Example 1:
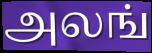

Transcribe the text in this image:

அலங்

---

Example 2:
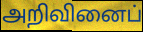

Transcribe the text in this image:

அறிவினைப்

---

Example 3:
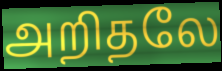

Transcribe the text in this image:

அறிதலே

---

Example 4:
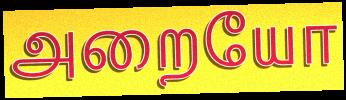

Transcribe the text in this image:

அறையோ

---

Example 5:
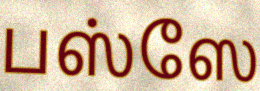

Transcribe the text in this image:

பஸ்ஸே